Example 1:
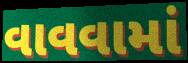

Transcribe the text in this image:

વાવવામાં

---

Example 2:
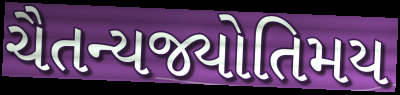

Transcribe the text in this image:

ચૈતન્યજ્યોતિમય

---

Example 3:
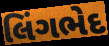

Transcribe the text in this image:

લિંગભેદ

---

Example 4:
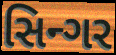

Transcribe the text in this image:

સિન્ગર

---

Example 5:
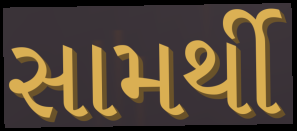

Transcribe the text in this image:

સામર્થી